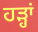
ਹੜ੍ਹਾਂ